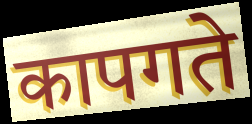
कापगते